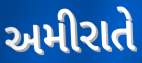
અમીરાતે